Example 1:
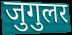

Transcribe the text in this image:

जुगुलर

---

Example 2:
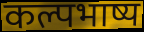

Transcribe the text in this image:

कल्पभाष्य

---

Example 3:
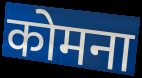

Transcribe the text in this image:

कोमना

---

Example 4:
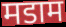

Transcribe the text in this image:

मडाम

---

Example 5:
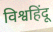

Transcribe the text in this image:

विश्वहिंदू